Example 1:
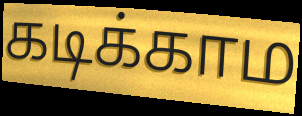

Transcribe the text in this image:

கடிக்காம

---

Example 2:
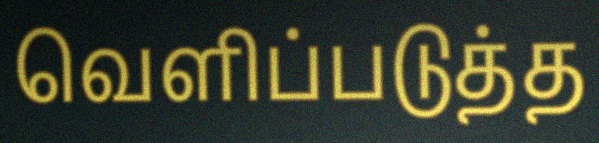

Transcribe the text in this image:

வெளிப்படுத்த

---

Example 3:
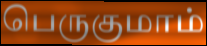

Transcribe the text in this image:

பெருகுமாம்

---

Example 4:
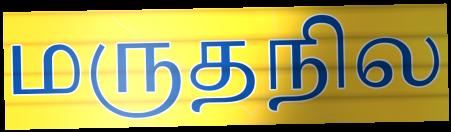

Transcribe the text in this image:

மருதநில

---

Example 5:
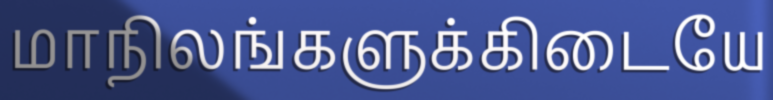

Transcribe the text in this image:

மாநிலங்களுக்கிடையே